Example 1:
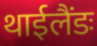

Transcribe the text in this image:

थाईलैंडः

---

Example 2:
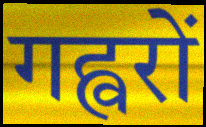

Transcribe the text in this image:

गह्वरों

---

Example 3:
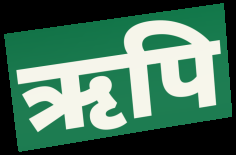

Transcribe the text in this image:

ऋपि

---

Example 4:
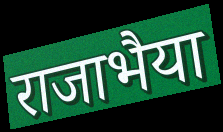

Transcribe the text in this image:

राजाभैया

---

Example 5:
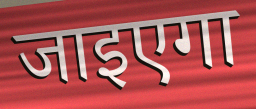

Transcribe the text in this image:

जाइएगा